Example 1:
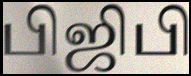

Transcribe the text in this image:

பிஜிபி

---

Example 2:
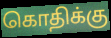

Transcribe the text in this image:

கொதிக்கு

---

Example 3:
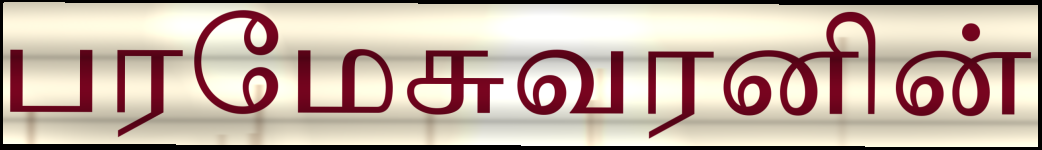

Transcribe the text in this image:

பரமேசுவரனின்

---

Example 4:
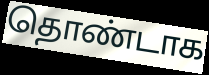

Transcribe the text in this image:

தொண்டாக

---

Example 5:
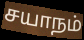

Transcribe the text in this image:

சயாநம்